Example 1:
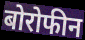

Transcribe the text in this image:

बोरोफीन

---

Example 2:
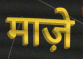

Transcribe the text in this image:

माज़े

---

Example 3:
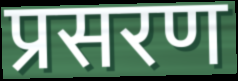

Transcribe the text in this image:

प्रसरण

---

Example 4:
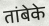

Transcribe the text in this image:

तांबेके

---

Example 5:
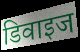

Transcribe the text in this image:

डिवाइज